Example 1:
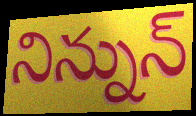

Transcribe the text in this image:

నిన్నున్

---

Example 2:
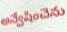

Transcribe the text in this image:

అన్వేషించెను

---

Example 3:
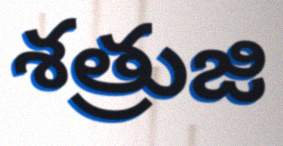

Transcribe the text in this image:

శత్రుజి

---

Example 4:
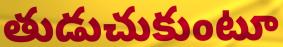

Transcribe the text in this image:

తుడుచుకుంటూ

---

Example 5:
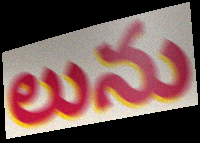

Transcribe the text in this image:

లును